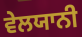
ਵੇਲਯਾਨੀ